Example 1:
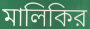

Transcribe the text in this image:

মালিকির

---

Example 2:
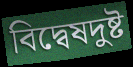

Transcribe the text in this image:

বিদ্বেষদুষ্ট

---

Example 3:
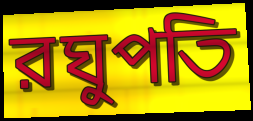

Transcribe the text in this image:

রঘুপতি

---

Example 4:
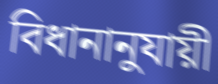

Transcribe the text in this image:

বিধানানুযায়ী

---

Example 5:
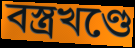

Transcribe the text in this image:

বস্ত্রখণ্ডে